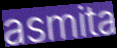
asmita